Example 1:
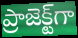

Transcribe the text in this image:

ప్రాజెక్ట్‌గా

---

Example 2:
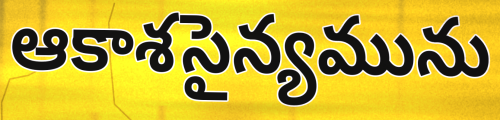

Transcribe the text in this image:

ఆకాశసైన్యమును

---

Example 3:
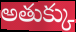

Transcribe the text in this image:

అతుక్కు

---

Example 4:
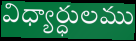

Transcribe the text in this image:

విధ్యార్ధులము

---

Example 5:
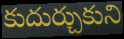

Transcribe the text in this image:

కుదుర్చుకుని